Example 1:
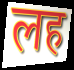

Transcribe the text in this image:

लह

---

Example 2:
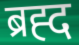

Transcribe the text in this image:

ब्रह्द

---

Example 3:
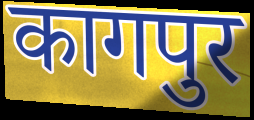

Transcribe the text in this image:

कागपुर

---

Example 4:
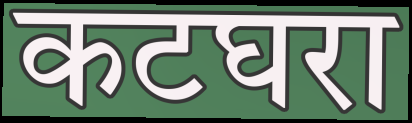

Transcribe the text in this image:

कटघरा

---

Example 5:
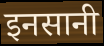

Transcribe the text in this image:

इनसानी